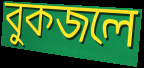
বুকজলে